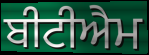
ਬੀਟੀਐਮ